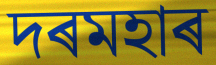
দৰমহাৰ